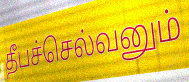
தீபச்செல்வனும்